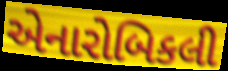
એનારોબિકલી